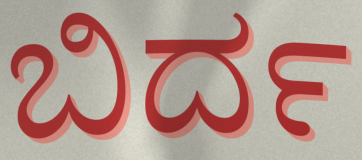
ಬಿರ್ದ